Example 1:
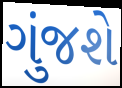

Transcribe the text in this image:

ગુંજશે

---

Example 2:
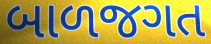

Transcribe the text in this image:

બાળજગત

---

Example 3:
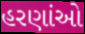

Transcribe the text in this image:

હરણાંઓ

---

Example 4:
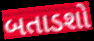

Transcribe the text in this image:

બતાડશો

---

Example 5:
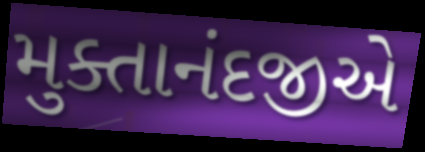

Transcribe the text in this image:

મુક્તાનંદજીએ